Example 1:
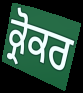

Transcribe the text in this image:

ਕ੍ਰੋਕਰ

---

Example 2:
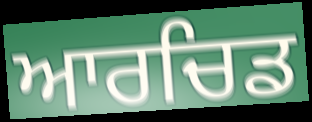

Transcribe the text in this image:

ਆਰਚਿਡ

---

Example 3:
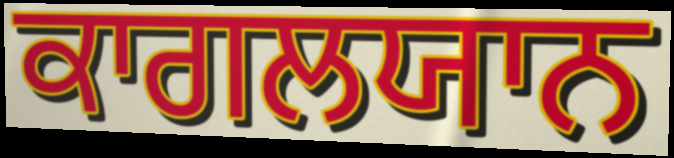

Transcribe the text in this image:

ਕਾਗਲਯਾਨ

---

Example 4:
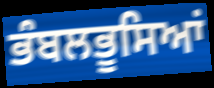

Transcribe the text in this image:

ਭੰਬਲਭੂਸਿਆਂ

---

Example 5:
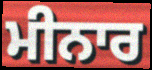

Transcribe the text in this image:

ਮੀਨਾਰ